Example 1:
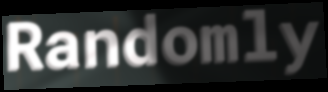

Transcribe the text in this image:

Randomly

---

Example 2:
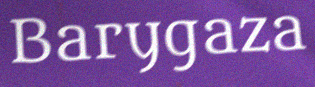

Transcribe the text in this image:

Barygaza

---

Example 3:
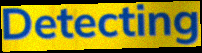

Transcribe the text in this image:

Detecting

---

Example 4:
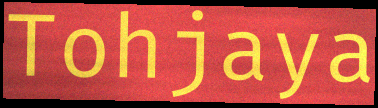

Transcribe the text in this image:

Tohjaya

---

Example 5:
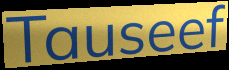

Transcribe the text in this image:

Tauseef